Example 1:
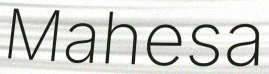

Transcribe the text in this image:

Mahesa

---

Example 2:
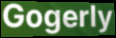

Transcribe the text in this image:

Gogerly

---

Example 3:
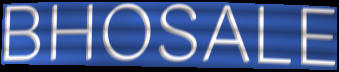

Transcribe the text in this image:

BHOSALE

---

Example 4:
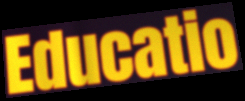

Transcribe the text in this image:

Educatio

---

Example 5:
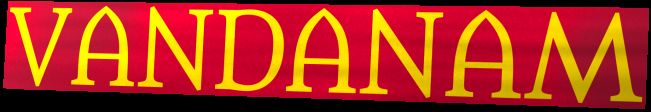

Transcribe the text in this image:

VANDANAM